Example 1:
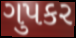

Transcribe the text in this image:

ગુપકર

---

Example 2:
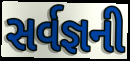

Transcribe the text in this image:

સર્વજ્ઞની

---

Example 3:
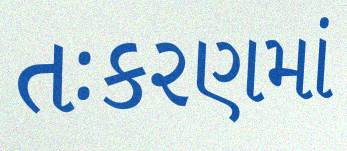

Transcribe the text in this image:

તઃકરણમાં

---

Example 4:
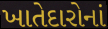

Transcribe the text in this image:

ખાતેદારોનાં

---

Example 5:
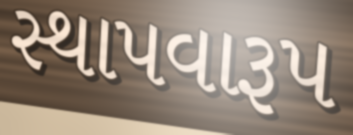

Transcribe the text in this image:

સ્થાપવારૂપ